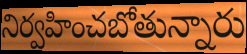
నిర్వహించబోతున్నారు